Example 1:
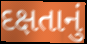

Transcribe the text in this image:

દક્ષતાનું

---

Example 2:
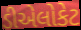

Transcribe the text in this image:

ડીએલોકેટ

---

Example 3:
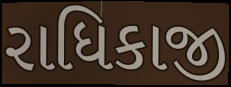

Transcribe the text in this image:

રાધિકાજી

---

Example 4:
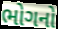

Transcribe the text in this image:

ભોગનો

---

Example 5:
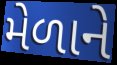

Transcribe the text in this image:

મેળાને